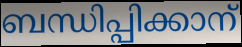
ബന്ധിപ്പിക്കാന്